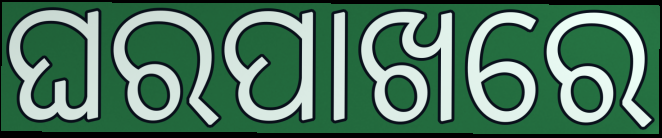
ଘରପାଖରେ